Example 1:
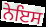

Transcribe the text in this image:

ਨੇਇਸ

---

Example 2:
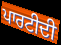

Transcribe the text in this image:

ਪਾਰਟੀਦੀ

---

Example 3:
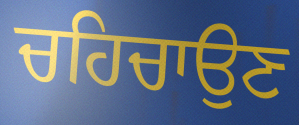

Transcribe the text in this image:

ਚਹਿਚਾਉਣ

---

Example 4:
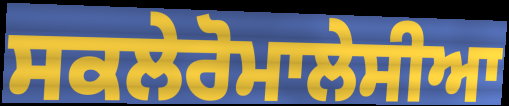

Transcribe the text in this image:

ਸਕਲੇਰੋਮਾਲੇਸੀਆ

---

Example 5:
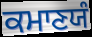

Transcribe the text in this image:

ਕਮਾਣਯੰ